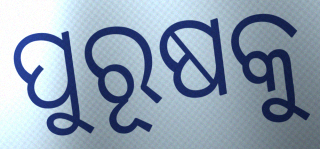
ପୁରୂଷକୁ